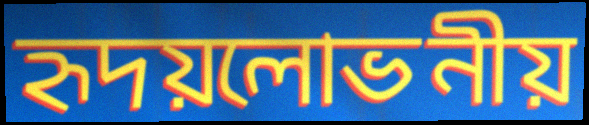
হৃদয়লোভনীয়